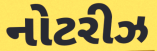
નોટરીઝ